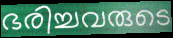
ഭരിച്ചവരുടെ